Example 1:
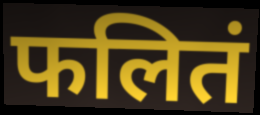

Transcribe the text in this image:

फलितं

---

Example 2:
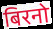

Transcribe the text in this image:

बिरनो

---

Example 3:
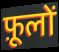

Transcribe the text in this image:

फ़ूलों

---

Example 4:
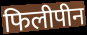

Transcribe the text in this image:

फिलीपीन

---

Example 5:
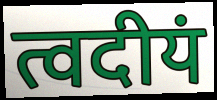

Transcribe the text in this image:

त्वदीयं